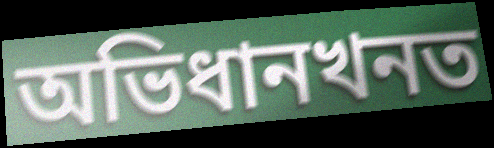
অভিধানখনত